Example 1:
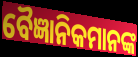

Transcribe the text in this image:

ବୈଜ୍ଞାନିକମାନଙ୍କ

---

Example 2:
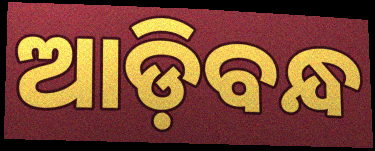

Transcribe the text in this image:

ଆଡ଼ିବନ୍ଧ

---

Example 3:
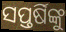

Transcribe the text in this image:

ସପ୍ତର୍ଷିଙ୍କୁ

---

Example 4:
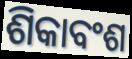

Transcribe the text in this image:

ଶିକାବଂଶ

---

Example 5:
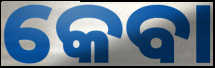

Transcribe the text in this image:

କେବା